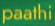
paathi